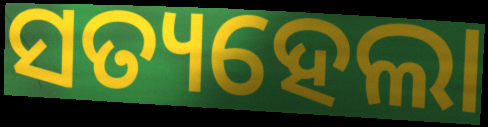
ସତ୍ୟହେଲା